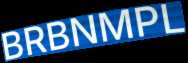
BRBNMPL